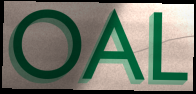
OAL